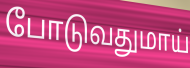
போடுவதுமாய்